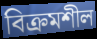
বিক্ৰমশীল